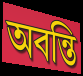
অবন্তি